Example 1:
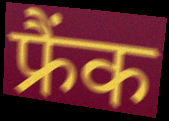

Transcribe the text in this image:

फ्रैंक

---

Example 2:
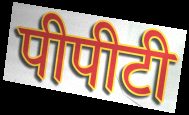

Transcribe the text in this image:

पीपीटी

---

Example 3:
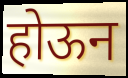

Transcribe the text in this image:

होऊन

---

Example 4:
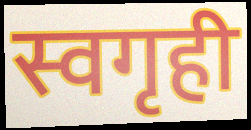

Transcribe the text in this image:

स्वगृही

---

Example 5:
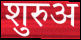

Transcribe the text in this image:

शुरुअ